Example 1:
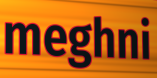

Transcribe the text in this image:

meghni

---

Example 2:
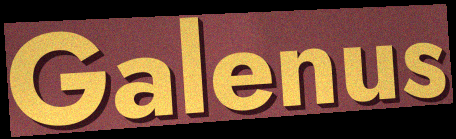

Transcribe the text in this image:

Galenus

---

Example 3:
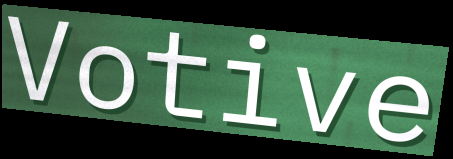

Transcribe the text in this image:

Votive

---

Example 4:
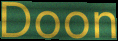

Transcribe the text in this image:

Doon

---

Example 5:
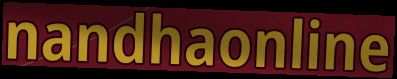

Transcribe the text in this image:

nandhaonline